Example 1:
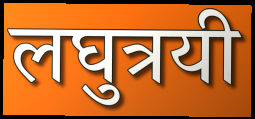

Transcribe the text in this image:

लघुत्रयी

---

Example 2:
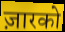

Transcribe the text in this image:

ज़ारको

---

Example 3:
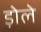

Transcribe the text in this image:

ड़ोले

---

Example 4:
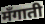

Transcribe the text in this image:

मँगाती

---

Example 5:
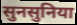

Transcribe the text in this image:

सुनसुनिया